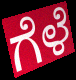
ಗೆಳೆ